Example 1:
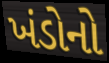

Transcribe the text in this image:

ખંડોનો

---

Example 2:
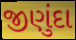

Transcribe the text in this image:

જીણુંદા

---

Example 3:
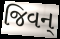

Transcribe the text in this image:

જિવન્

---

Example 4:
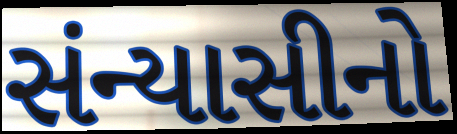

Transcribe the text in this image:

સંન્યાસીનો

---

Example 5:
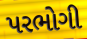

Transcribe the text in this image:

પરભોગી